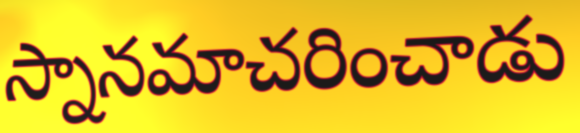
స్నానమాచరించాడు